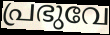
പ്രഭുവേ